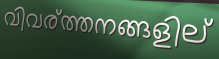
വിവര്ത്തനങ്ങളില്